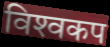
विश्‍वकप